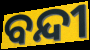
ବନ୍ଦୀ